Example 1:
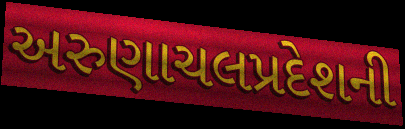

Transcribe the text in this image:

અરુણાચલપ્રદેશની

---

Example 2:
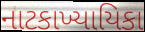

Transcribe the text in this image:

નાટકાખ્યાયિકા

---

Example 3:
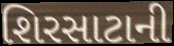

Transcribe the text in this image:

શિરસાટાની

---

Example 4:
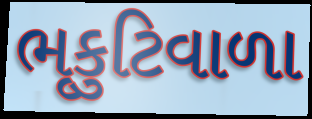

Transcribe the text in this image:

ભૃકુટિવાળા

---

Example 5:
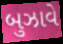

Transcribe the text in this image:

બુઝાવે